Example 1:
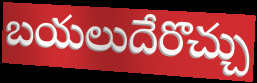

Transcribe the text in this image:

బయలుదేరొచ్చు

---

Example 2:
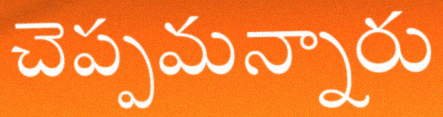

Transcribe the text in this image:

చెప్పమన్నారు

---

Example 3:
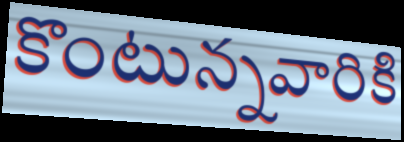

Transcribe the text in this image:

కొంటున్నవారికి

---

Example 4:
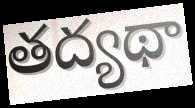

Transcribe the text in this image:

తద్యథా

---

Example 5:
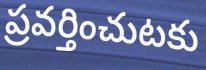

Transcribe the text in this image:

ప్రవర్తించుటకు